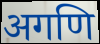
अगणि